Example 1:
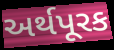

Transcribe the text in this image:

અર્થપૂરક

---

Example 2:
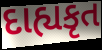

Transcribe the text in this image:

દાહ્યકૃત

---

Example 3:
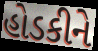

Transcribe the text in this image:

હોડકીને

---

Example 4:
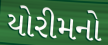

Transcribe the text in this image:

યોરીમનો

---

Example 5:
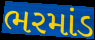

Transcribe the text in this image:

ભરમાંડ